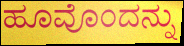
ಹೂವೊಂದನ್ನು